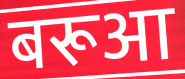
बरूआ